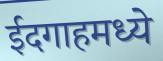
ईदगाहमध्ये